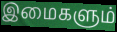
இமைகளும்